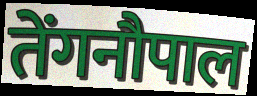
तेंगनौपाल